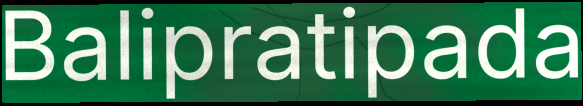
Balipratipada